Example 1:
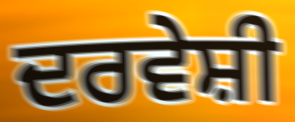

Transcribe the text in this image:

ਦਰਵੇਸ਼ੀ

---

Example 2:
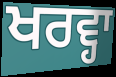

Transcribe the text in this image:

ਖਰਵ੍ਹਾ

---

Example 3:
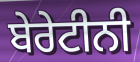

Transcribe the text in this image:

ਬੇਰੇਟੀਨੀ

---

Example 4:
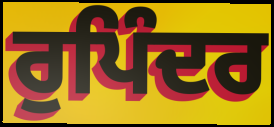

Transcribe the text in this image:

ਰੁਪਿੰਦਰ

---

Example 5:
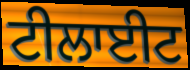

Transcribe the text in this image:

ਟੀਲਾਈਟ